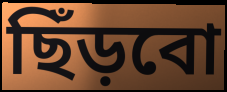
ছিঁড়বো